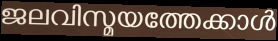
ജലവിസ്മയത്തേക്കാൾ